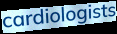
cardiologists